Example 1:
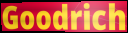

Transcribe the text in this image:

Goodrich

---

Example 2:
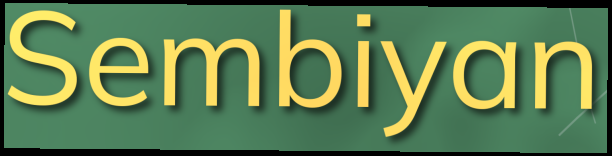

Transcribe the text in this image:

Sembiyan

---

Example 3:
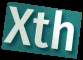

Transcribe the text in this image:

Xth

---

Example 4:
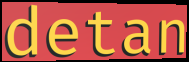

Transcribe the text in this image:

detan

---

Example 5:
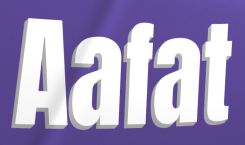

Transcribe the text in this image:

Aafat